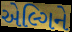
એલ્ગિને